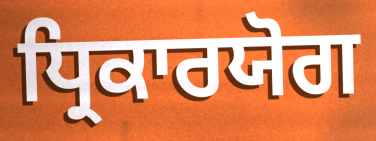
ਧ੍ਰਿਕਾਰਯੋਗ